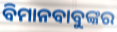
ବିମାନବାବୁଙ୍କର